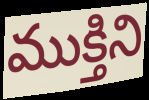
ముక్తిని